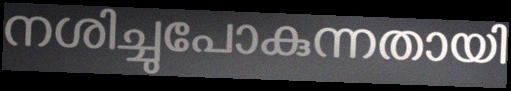
നശിച്ചുപോകുന്നതായി